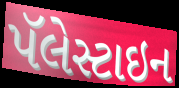
પૅલેસ્ટાઇન